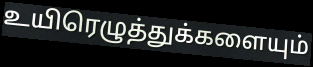
உயிரெழுத்துக்களையும்